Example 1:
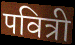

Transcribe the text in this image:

पवित्री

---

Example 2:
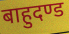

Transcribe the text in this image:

बाहुदण्ड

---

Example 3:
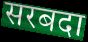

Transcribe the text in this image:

सरबदा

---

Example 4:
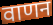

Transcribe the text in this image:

वाणन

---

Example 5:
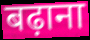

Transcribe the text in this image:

बढ़ाना